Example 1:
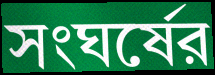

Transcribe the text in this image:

সংঘর্ষের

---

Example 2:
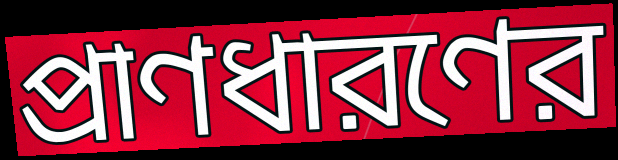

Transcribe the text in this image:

প্রাণধারণের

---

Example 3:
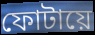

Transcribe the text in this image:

ফোটায়ে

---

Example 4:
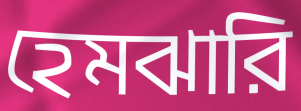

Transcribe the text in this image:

হেমঝারি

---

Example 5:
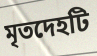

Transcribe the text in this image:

মৃতদেহটি